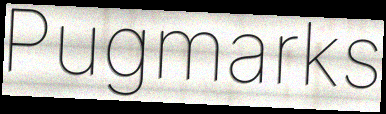
Pugmarks